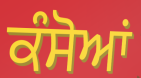
ਕੰਸੋਆਂ